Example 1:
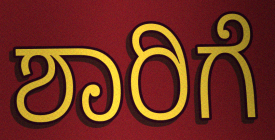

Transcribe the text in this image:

ಶಾರಿಗೆ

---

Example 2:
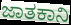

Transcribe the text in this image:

ಜಾತಕಾನಿ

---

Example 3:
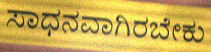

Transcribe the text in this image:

ಸಾಧನವಾಗಿರಬೇಕು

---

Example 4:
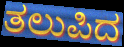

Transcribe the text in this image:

ತಲುಪಿದ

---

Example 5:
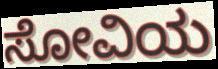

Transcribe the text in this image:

ಸೋವಿಯ